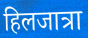
हिलजात्रा